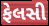
ફેલસી